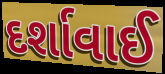
દર્શાવાઈ